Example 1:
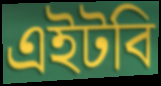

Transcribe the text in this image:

এইটবি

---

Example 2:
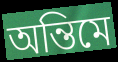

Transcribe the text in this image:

অন্তিমে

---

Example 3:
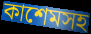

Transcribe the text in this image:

কাশেমসহ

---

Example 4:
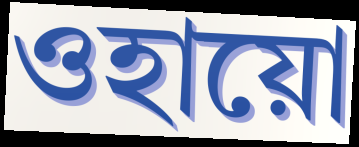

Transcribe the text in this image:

ওহায়ো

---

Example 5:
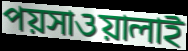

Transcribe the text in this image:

পয়সাওয়ালাই